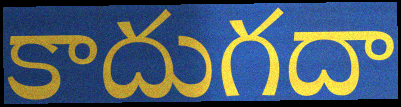
కాదుగదా